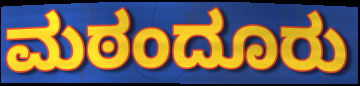
ಮಠಂದೂರು